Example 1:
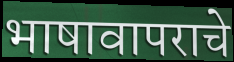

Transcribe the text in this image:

भाषावापराचे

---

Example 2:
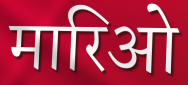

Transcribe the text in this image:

मारिओ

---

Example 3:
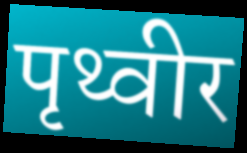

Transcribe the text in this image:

पृथ्वीर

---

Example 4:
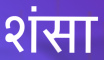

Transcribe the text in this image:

शंसा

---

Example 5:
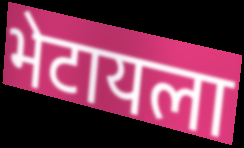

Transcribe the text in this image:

भेटायला